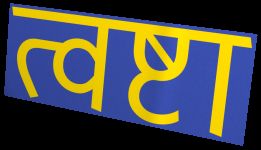
त्वष्टा